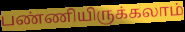
பண்ணியிருக்கலாம்